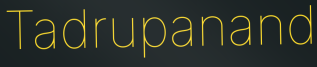
Tadrupanand